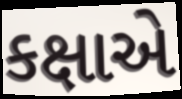
કક્ષાએ